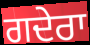
ਗਦੇਰਾ